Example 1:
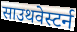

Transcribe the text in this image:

साउथवेस्टर्न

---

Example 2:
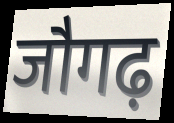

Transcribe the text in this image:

जौगढ़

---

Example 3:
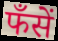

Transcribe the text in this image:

फँसें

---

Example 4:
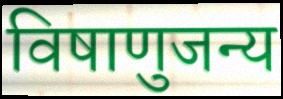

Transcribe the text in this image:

विषाणुजन्य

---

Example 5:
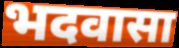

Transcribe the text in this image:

भदवासा